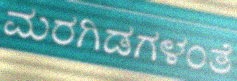
ಮರಗಿಡಗಳಂತೆ